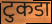
टुकडा